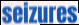
seizures